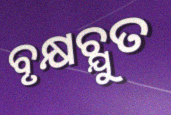
ବୃକ୍ଷଚ୍ଯୁତ